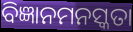
ବିଜ୍ଞାନମନସ୍କତା